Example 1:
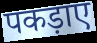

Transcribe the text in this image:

पकड़ाए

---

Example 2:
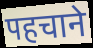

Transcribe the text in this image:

पहचाने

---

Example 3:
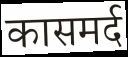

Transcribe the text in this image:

कासमर्द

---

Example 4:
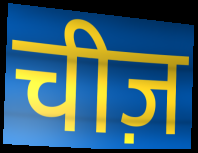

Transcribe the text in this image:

चीज़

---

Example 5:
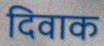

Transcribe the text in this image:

दिवाक